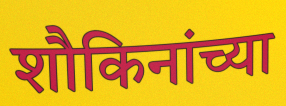
शौकिनांच्या